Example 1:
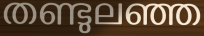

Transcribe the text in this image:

തണ്ടുലഞ്ഞ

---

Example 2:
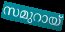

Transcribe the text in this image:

സമുറായ്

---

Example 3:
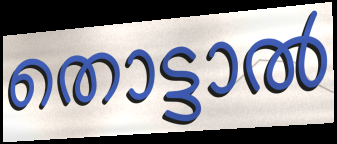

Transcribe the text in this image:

തൊട്ടാൽ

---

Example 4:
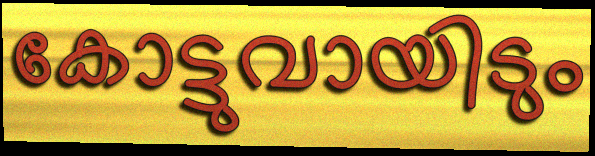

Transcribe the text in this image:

കോട്ടുവായിടും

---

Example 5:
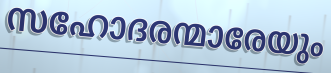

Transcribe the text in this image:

സഹോദരന്മാരേയും